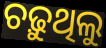
ଚଢ଼ୁଥିଲୁ